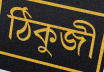
ঠিকুজী